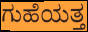
ಗುಹೆಯತ್ತ